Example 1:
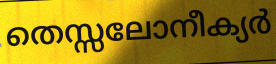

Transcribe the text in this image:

തെസ്സലോനീക്യർ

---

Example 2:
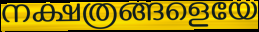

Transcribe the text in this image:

നക്ഷത്രങ്ങളെയേ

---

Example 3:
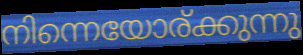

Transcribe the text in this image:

നിന്നെയോര്ക്കുന്നു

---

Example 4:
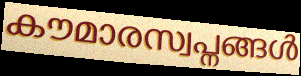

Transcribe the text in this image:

കൗമാരസ്വപ്നങ്ങൾ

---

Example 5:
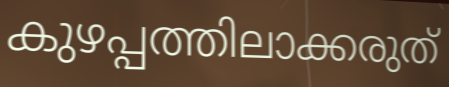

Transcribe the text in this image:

കുഴപ്പത്തിലാക്കരുത്